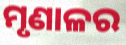
ମୃଣାଳର